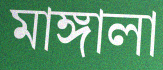
মাঙ্গালা